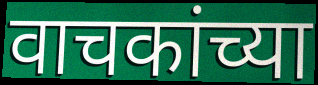
वाचकांच्या